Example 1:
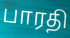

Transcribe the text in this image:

பாரதி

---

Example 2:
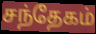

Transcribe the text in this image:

சந்தேகம்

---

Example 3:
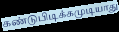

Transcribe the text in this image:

கண்டுபிடிக்கமுடியாது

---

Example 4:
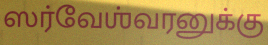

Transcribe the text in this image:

ஸர்வேஶ்வரனுக்கு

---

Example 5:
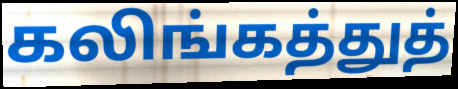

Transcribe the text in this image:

கலிங்கத்துத்